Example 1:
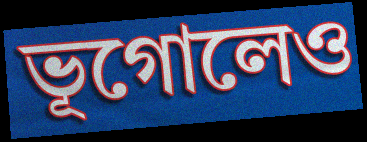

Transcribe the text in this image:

ভূগোলেও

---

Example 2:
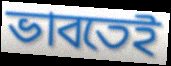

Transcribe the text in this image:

ভাবতেই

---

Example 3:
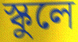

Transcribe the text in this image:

স্কুলে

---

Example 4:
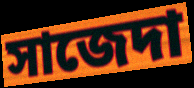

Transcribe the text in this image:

সাজেদা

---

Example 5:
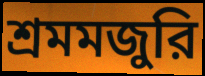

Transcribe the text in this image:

শ্রমমজুরি